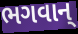
ભગવાન્